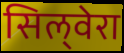
सिल्वेरा